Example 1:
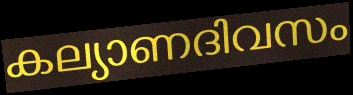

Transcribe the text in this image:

കല്യാണദിവസം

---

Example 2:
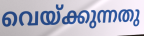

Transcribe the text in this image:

വെയ്ക്കുന്നതു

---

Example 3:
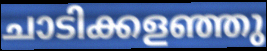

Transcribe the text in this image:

ചാടിക്കളഞ്ഞു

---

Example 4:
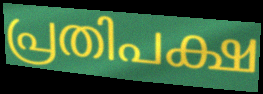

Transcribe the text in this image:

പ്രതിപക്ഷ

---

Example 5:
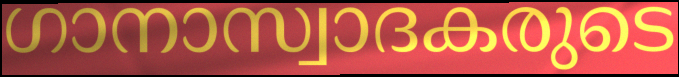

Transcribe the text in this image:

ഗാനാസ്വാദകരുടെ